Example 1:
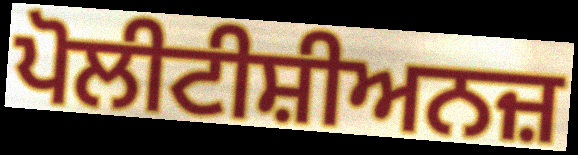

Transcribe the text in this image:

ਪੋਲੀਟੀਸ਼ੀਅਨਜ਼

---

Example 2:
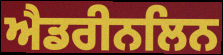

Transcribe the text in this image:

ਐਡਰੀਨਲਿਨ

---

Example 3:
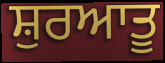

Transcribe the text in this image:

ਸ਼ੁਰਆਤੂ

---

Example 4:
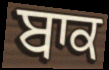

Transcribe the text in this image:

ਬਾਕ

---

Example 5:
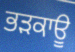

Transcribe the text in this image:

ਭੜਕਾਊ